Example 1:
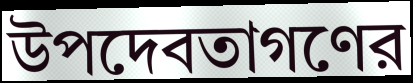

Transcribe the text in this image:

উপদেবতাগণের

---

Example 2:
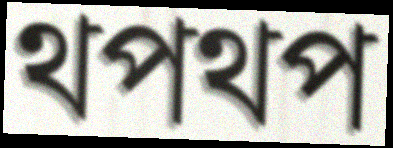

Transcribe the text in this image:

থপথপ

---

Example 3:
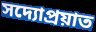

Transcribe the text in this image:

সদ্যোপ্রয়াত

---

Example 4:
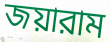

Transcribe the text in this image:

জয়ারাম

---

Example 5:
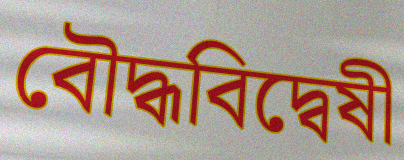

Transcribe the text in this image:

বৌদ্ধবিদ্বেষী